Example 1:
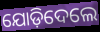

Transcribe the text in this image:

ଯୋଡ଼ିଦେଲେ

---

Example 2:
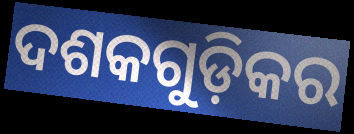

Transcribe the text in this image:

ଦଶକଗୁଡ଼ିକର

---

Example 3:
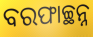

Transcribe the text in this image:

ବରଫାଚ୍ଛନ୍ନ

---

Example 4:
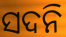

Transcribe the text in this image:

ସଦନି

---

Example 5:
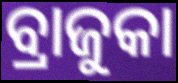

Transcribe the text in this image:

ବ୍ରାଜୁକା